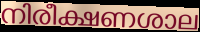
നിരീക്ഷണശാല